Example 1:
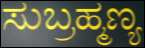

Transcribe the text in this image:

ಸುಬ್ರಹ್ಮಣ್ಯ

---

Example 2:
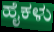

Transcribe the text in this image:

ಹೈಕಳು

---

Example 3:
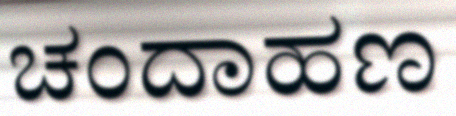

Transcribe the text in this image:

ಚಂದಾಹಣ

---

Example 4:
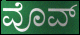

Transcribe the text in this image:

ವೊವ್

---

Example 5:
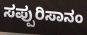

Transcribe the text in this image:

ಸಪ್ಪುರಿಸಾನಂ